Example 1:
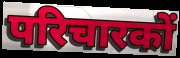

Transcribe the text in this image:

परिचारकों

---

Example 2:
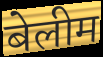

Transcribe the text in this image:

बेलीम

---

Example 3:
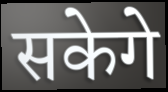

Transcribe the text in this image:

सकेगे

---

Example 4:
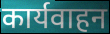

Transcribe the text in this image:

कार्यवाहन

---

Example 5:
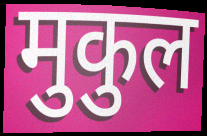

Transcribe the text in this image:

मुकुल